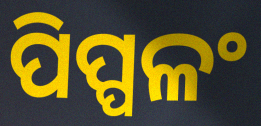
ପିପ୍ପଳଂ